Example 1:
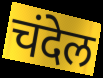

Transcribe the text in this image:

चंदेल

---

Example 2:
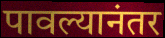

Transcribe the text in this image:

पावल्यानंतर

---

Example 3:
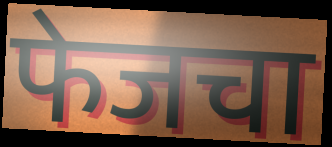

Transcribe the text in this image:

फेजचा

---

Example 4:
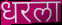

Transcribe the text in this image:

धरला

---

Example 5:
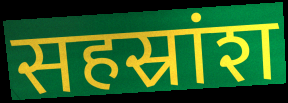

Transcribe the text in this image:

सहस्रांश